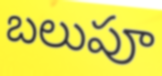
బలుపూ